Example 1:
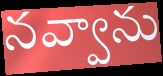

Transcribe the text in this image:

నవ్వాను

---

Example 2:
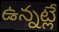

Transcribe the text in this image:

ఉన్నట్లే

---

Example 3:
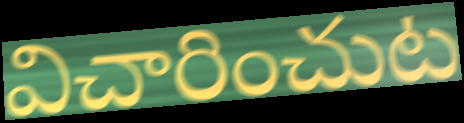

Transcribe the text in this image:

విచారించుట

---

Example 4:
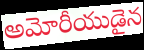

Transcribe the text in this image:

అమోరీయుడైన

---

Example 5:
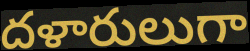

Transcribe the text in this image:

దళారులుగా